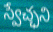
స్వేచ్ఛని